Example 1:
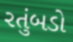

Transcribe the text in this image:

રતુંબડો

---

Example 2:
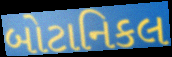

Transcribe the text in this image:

બોટાનિકલ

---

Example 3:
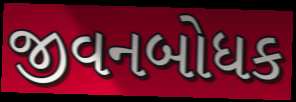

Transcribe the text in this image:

જીવનબોધક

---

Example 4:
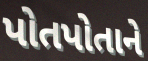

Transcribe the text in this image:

પોતપોતાને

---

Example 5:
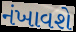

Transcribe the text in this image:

નંખાવશે